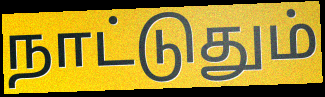
நாட்டுதும்